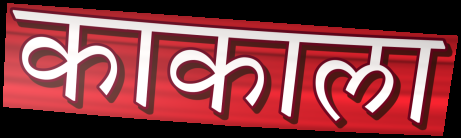
काकाला